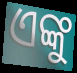
ଏଙ୍କୁ